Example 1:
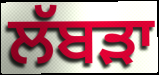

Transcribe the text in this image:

ਲੱਬੜਾ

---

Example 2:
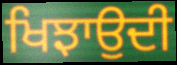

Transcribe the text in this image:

ਖਿਝਾਉਦੀ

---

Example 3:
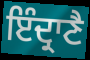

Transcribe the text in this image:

ਇੰਦ੍ਰਾਣੈ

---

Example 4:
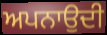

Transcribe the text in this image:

ਅਪਨਾਉਦੀ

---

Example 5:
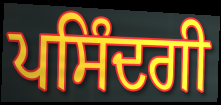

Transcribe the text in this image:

ਪਸਿੰਦਗੀ